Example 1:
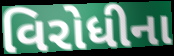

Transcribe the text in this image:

વિરોધીના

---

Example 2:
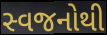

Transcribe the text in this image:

સ્વજનોથી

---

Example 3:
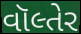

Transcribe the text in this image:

વૉલ્તેર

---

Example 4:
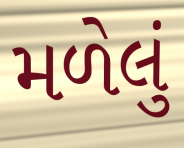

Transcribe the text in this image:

મળેલું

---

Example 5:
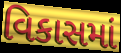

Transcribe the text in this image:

વિકાસમાં